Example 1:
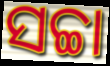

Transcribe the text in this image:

ସଚ୍ଚା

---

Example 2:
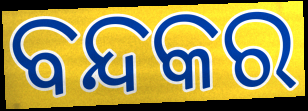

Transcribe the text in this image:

ବନ୍ଦକର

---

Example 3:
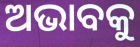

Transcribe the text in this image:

ଅଭାବକୁ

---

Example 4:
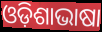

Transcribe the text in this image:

ଓଡ଼ିଶାଭାଷା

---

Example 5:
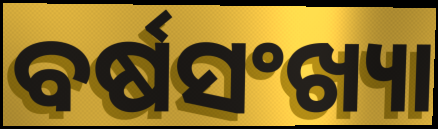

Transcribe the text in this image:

ବର୍ଷସଂଖ୍ୟା